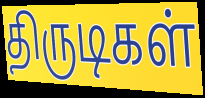
திருடிகள்